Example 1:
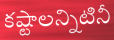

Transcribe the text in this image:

కష్టాలన్నిటినీ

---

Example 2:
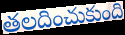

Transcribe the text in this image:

తలదించుకుంది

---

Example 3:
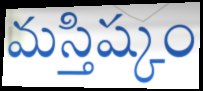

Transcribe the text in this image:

మస్తిష్కం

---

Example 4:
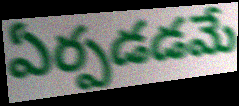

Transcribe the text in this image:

ఏర్పడడమే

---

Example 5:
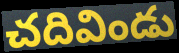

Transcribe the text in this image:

చదివిండు